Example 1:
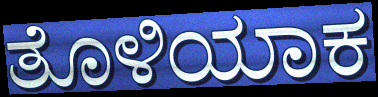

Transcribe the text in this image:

ತೊಳಿಯಾಕ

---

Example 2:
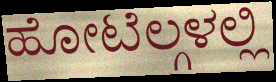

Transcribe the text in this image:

ಹೋಟೆಲ್ಗಳಲ್ಲಿ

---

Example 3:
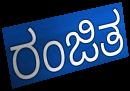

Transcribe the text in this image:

ರಂಜಿತ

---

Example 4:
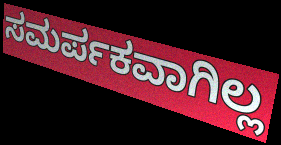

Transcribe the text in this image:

ಸಮರ್ಪಕವಾಗಿಲ್ಲ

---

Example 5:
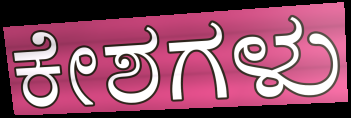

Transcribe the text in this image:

ಕೇಶಗಳು